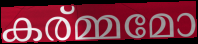
കര്മ്മമോ